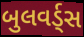
બુલવર્ડ્સ